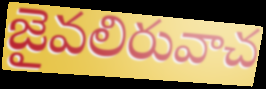
జైవలిరువాచ